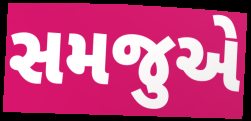
સમજુએ